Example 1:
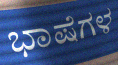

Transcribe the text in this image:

ಭಾಷೆಗಳ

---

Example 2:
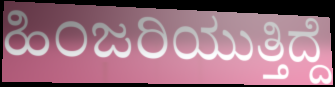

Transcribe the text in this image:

ಹಿಂಜರಿಯುತ್ತಿದ್ದೆ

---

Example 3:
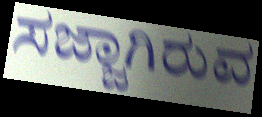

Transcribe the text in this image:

ಸಜ್ಜಾಗಿರುವ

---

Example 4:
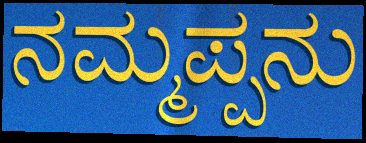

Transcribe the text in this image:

ನಮ್ಮಪ್ಪನು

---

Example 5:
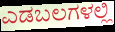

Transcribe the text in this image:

ಎಡಬಲಗಳಲ್ಲಿ